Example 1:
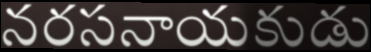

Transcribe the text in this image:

నరసనాయకుడు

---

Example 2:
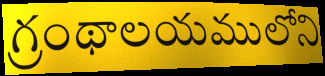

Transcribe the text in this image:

గ్రంథాలయములోని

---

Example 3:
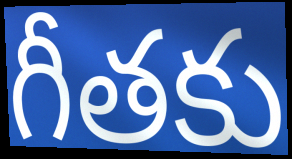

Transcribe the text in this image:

గీతకు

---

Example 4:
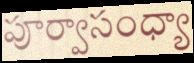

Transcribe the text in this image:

పూర్వాసంధ్యా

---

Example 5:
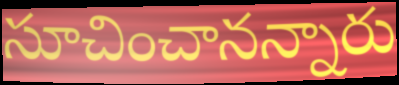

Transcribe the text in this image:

సూచించానన్నారు